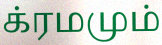
க்ரமமும்